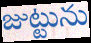
జుట్టును